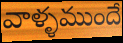
వాళ్ళముందే